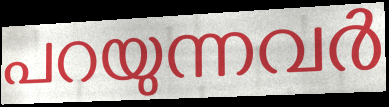
പറയുന്നവർ